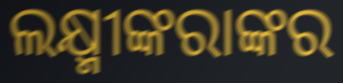
ଲକ୍ଷ୍ମୀଙ୍କରାଙ୍କର